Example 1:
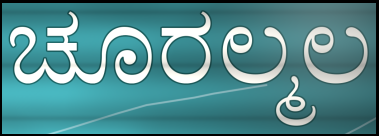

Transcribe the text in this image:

ಚೂರಲ್ಮಲ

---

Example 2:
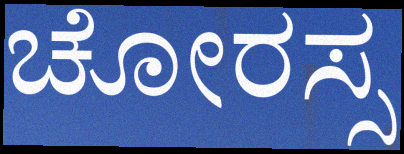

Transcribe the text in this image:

ಚೋರಸ್ಸ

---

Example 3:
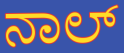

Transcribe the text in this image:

ನಾಲ್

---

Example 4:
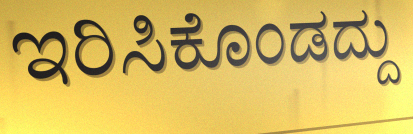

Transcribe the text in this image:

ಇರಿಸಿಕೊಂಡದ್ದು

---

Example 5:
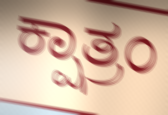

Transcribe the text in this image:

ಕ್ಷಾತ್ರಂ